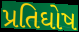
પ્રતિઘોષ